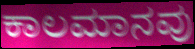
ಕಾಲಮಾನವು